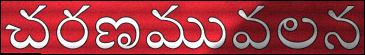
చరణమువలన